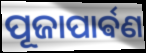
ପୂଜାପାର୍ଵଣ